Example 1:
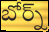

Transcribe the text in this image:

బోర్న్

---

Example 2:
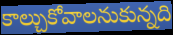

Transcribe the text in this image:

కాల్చుకోవాలనుకున్నది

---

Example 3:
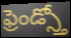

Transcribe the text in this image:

ఫ్రెండ్స్తో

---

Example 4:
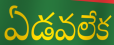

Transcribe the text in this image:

ఏడవలేక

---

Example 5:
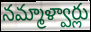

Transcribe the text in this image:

నమ్మాళ్వార్లు